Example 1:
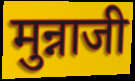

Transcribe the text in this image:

मुन्नाजी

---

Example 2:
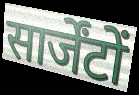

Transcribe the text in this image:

सार्जेंटों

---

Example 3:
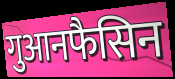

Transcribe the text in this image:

गुआनफैसिन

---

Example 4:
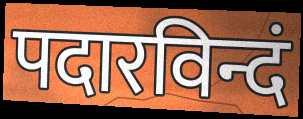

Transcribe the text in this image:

पदारविन्दं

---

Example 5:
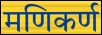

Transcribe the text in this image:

मणिकर्ण